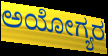
ಅಯೋಗ್ಯರ